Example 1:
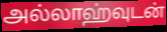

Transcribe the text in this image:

அல்லாஹ்வுடன்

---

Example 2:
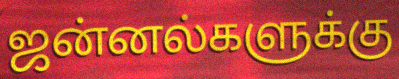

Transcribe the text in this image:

ஜன்னல்களுக்கு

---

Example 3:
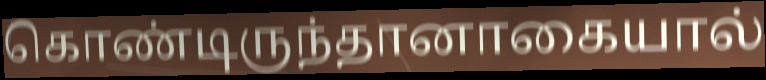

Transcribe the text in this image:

கொண்டிருந்தானாகையால்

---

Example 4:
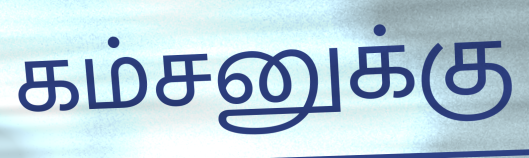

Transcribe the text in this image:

கம்சனுக்கு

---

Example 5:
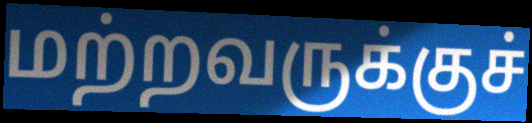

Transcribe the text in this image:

மற்றவருக்குச்